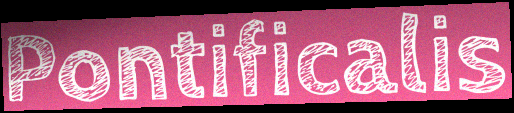
Pontificalis